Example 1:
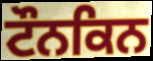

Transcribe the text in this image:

ਟੌਨਕਿਨ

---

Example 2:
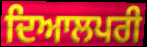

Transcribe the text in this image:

ਦਿਆਲਪਰੀ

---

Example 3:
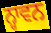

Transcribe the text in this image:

ਨ੍ਹਾਵਨ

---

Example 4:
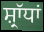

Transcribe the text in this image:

ਸ਼੍ਰਾੱਧਾਂ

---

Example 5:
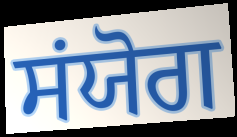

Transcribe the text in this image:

ਸਂਯੋਗ